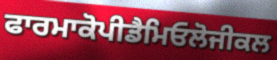
ਫਾਰਮਾਕੋਪੀਡੈਮਿਓਲੋਜੀਕਲ